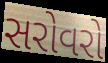
સરોવરો